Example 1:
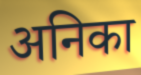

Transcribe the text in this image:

अनिका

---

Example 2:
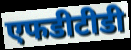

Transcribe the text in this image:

एफडीटीडी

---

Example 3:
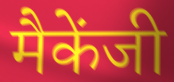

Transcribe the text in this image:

मैकेंजी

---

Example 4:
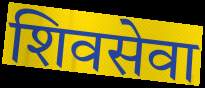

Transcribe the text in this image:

शिवसेवा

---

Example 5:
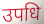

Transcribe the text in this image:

उपधि